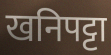
खनिपट्टा